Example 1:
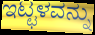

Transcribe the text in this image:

ಇಟ್ಟಳವನ್ನು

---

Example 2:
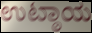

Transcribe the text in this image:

ಉಟ್ಠಾಯ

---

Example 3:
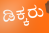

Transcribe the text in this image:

ಡಿಕ್ಕರು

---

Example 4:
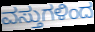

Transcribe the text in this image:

ವಸ್ತುಗಳಿಂದ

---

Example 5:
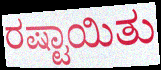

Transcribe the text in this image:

ರಷ್ಟಾಯಿತು